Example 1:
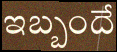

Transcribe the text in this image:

ఇబ్బందే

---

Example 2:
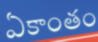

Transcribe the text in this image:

ఏకాంతం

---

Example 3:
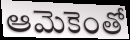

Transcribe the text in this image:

ఆమెకెంతో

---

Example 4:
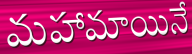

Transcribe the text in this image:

మహామాయినే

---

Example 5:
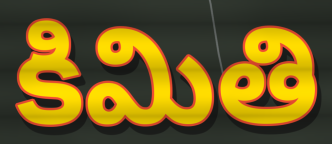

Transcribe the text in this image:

కిమితి